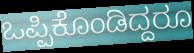
ಒಪ್ಪಿಕೊಂಡಿದ್ದರೂ